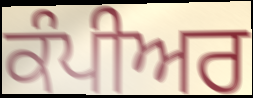
ਕੰਪੀਅਰ